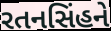
રતનસિંહને